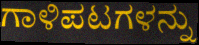
ಗಾಳಿಪಟಗಳನ್ನು